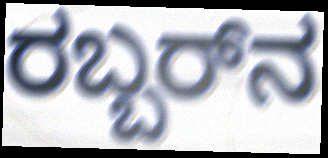
ರಬ್ಬರ್‌ನ